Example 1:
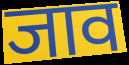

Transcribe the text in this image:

जाव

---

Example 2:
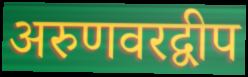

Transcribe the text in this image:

अरुणवरद्वीप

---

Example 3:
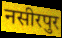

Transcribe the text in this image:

नसीरपुर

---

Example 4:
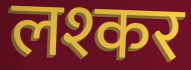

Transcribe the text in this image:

लश्‍कर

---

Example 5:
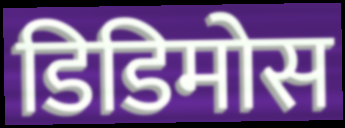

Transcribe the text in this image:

डिडिमोस